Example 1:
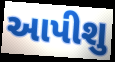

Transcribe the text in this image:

આપીશુ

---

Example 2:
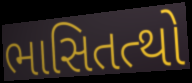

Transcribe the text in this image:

ભાસિતત્થો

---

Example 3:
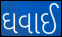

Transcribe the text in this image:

ઘવાઈ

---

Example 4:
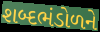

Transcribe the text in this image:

શબ્દભંડોળને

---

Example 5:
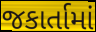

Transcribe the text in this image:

જકાર્તામાં